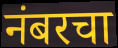
नंबरचा